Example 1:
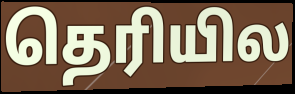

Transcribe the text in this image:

தெரியில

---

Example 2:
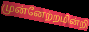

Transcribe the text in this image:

முன்னேற்றமின்றி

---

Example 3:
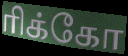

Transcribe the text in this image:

ரிக்கோ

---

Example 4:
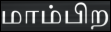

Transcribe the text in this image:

மாம்பிற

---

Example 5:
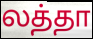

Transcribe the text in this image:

லத்தா